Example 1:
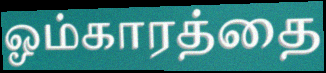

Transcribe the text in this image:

ஓம்காரத்தை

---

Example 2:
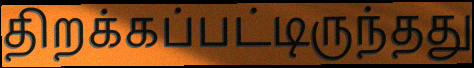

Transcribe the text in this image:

திறக்கப்பட்டிருந்தது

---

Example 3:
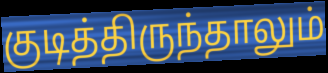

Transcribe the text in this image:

குடித்திருந்தாலும்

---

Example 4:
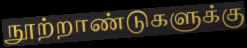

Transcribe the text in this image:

நூற்றாண்டுகளுக்கு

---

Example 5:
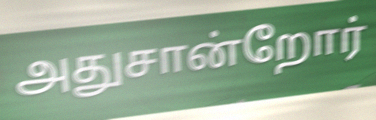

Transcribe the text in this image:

அதுசான்றோர்